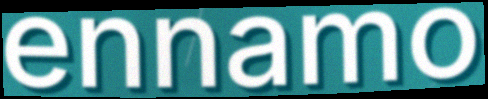
ennamo